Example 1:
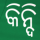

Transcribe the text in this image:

କିନ୍ଦି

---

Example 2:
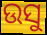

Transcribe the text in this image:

ଉସୁ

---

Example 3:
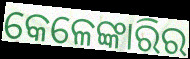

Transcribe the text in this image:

କେଳେଙ୍କାରିର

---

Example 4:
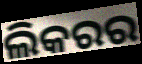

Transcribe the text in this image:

ଲିକରର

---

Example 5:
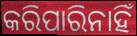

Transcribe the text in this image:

କରିପାରିନାହିଁ